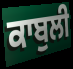
ਕਾਬੁਲੀ